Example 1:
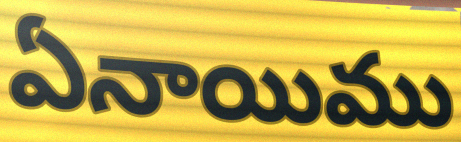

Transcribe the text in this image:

ఏనాయిము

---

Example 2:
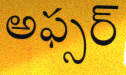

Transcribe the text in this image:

అఫ్సర్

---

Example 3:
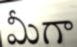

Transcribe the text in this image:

మీగా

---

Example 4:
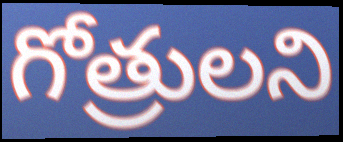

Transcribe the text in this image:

గోత్రులని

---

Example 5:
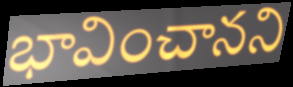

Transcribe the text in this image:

భావించానని